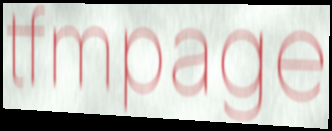
tfmpage